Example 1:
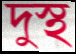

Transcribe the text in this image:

দুস্থ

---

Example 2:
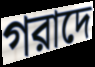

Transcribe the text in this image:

গরাদে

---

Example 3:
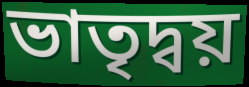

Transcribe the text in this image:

ভাতৃদ্বয়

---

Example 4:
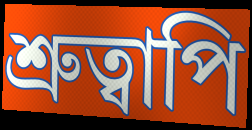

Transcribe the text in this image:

শ্রুত্বাপি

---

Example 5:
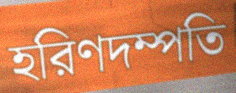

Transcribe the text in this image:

হরিণদম্পতি